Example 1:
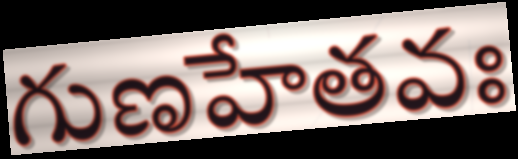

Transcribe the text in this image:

గుణహేతవః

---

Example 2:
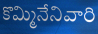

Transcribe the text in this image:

కొమ్మినేనివారి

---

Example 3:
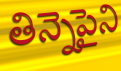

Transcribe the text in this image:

తిన్నెపైని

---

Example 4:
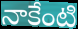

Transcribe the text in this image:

నాకేంటి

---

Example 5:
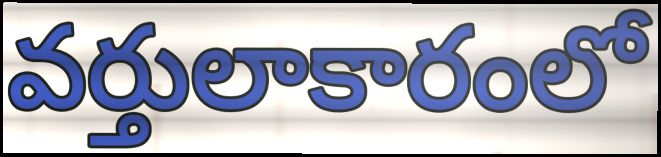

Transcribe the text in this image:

వర్తులాకారంలో